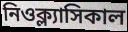
নিওক্ল্যাসিকাল